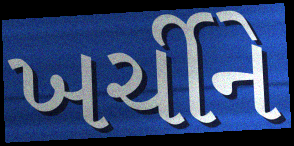
ખર્ચીને